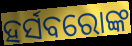
ହର୍ସବରୋଙ୍କ